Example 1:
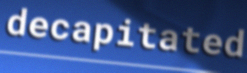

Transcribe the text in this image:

decapitated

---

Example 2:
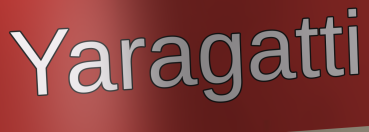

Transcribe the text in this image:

Yaragatti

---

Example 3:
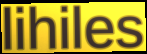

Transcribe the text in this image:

lihiles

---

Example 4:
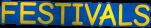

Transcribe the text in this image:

FESTIVALS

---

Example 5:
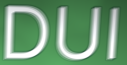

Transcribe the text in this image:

DUI